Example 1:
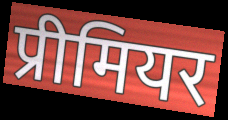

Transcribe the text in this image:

प्रीमियर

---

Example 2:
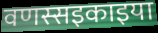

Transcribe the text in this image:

वणस्सइकाइया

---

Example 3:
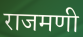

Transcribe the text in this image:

राजमणी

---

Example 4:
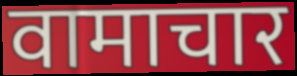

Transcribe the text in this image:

वामाचार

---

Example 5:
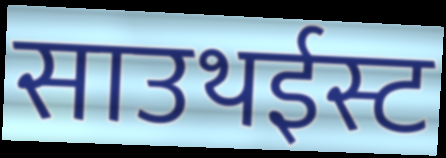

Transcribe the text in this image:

साउथईस्ट